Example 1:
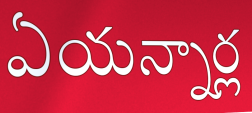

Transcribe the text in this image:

ఏయన్నార్ల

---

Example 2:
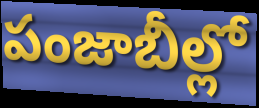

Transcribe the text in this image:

పంజాబీల్లో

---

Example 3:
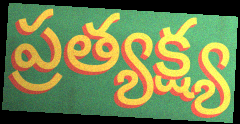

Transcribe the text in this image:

ప్రత్యక్ష్య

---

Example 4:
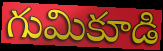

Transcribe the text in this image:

గుమికూడి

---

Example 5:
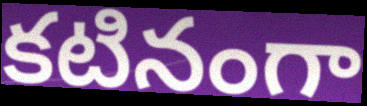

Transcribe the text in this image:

కటినంగా